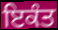
ਇਕੰਤ